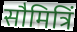
सौमित्रिं